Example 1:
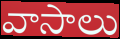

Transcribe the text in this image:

వాసాలు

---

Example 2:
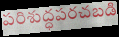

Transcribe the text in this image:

పరిశుద్ధపరచబడి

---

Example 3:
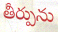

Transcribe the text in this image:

తీర్పును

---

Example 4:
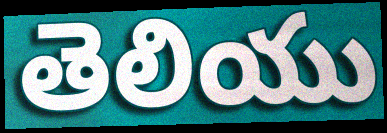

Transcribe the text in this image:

తెలియు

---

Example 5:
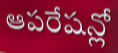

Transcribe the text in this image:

ఆపరేషన్లో